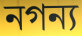
নগন্য